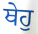
ਥੇਹੁ